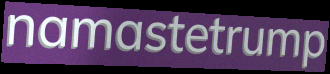
namastetrump